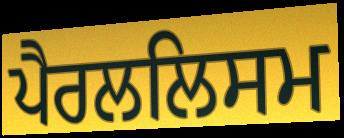
ਪੈਰਲਲਿਸਮ